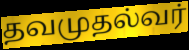
தவமுதல்வர்